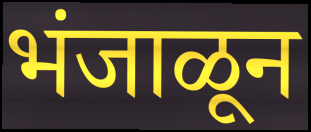
भंजाळून